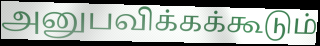
அனுபவிக்கக்கூடும்